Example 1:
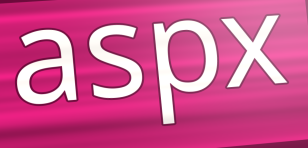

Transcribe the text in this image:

aspx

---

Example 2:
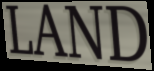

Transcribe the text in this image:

LAND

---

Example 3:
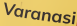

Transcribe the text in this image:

Varanasi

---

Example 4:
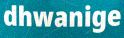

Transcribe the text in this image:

dhwanige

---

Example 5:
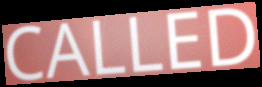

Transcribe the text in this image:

CALLED